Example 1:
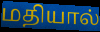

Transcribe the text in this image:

மதியால்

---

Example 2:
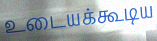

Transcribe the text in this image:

உடையக்கூடிய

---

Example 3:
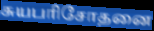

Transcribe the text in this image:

சுயபரிசோதனை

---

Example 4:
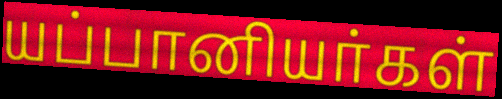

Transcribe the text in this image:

யப்பானியர்கள்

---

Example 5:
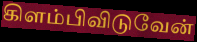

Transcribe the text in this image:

கிளம்பிவிடுவேன்